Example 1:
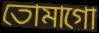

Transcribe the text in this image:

তোমাগো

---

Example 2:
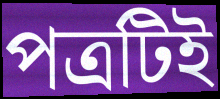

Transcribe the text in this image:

পত্রটিই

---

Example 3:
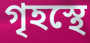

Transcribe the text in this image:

গৃহস্থে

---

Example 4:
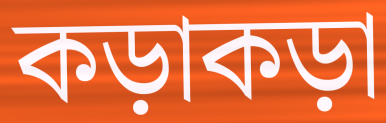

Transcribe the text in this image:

কড়াকড়া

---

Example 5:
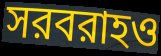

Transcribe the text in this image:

সরবরাহও